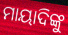
ମାୟାଦିଙ୍କୁ